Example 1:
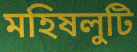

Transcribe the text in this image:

মহিষলুটি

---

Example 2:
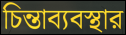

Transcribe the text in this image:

চিন্তাব্যবস্থার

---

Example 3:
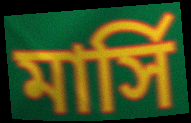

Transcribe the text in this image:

মার্সি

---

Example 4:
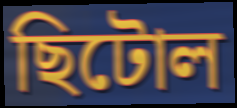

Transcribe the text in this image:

ছিটোল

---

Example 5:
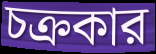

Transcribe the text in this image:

চক্রকার